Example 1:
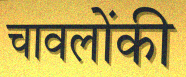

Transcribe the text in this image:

चावलोंकी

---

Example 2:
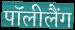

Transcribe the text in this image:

पॉलीलैंग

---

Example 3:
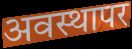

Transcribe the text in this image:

अवस्थापर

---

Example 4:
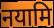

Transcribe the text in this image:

नयामि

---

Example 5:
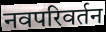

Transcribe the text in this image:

नवपरिवर्तन